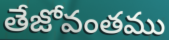
తేజోవంతము